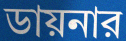
ডায়নার